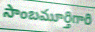
సాంబమూర్తిగారి